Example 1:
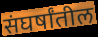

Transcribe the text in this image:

संघर्षांतील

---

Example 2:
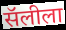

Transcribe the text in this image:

सॅलीला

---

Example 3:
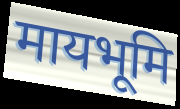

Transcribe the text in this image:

मायभूमि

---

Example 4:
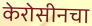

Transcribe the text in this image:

केरोसीनचा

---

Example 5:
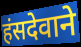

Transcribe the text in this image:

हंसदेवाने